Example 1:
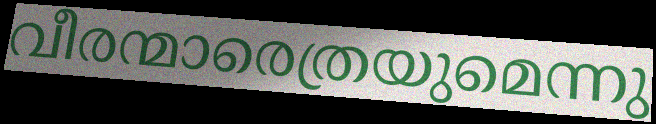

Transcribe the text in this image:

വീരന്മാരെത്രയുമെന്നു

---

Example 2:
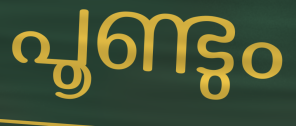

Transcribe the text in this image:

പൂണ്ടും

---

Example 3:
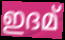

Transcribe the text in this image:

ഇദമ്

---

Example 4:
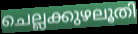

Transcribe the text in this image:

ചെല്ലക്കുഴലൂതി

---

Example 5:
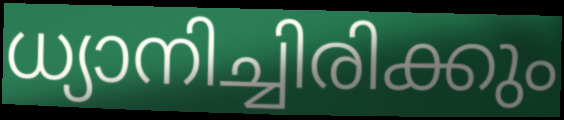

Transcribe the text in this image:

ധ്യാനിച്ചിരിക്കും